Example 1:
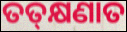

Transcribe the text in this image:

ତତ୍‍କ୍ଷଣାତ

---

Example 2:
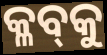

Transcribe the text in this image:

କ୍ଳବ୍‌କୁ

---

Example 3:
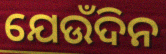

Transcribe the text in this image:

ଯେଉଁଦିନ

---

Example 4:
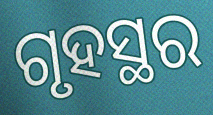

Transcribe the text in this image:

ଗୃହସ୍ଥର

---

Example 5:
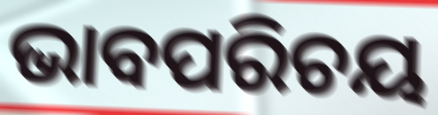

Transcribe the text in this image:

ଭାବପରିଚୟ